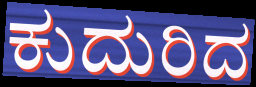
ಕುದುರಿದ